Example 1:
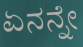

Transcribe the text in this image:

ಏನನ್ನೇ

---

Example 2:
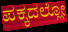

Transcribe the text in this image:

ಪಕ್ಕದಲ್ಲೋ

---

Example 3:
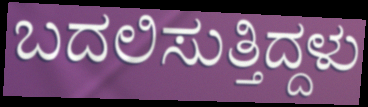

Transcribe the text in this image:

ಬದಲಿಸುತ್ತಿದ್ದಳು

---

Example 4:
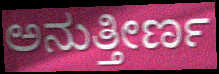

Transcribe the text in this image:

ಅನುತ್ತೀರ್ಣ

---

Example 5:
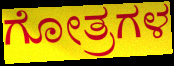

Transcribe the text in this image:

ಗೋತ್ರಗಳ